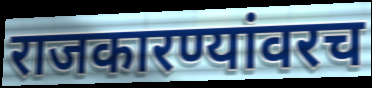
राजकारण्यांवरच